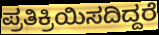
ಪ್ರತಿಕ್ರಿಯಿಸದಿದ್ದರೆ